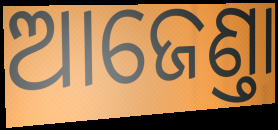
ଆଜେଣ୍ତା